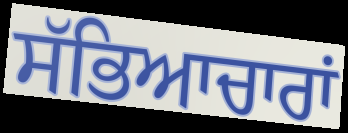
ਸੱਭਿਆਚਾਰਾਂ